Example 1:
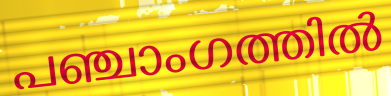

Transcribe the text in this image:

പഞ്ചാംഗത്തിൽ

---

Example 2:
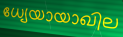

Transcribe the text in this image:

ധ്യേയായാഖില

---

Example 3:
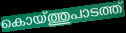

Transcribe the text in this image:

കൊയ്ത്തുപാടത്ത്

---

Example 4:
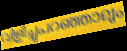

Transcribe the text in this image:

വിളിച്ചുപറഞ്ഞാലും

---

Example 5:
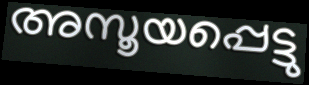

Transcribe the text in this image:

അസൂയപ്പെട്ടു